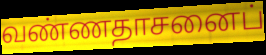
வண்ணதாசனைப்